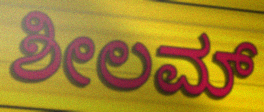
ಶೀಲಮ್